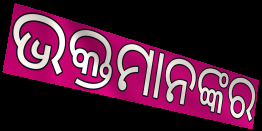
ଭକ୍ତମାନଙ୍କର